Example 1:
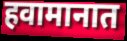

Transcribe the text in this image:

हवामानात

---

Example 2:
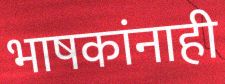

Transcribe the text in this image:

भाषकांनाही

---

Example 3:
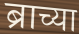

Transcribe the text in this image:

ब्राच्या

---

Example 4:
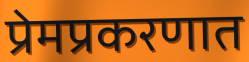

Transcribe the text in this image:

प्रेमप्रकरणात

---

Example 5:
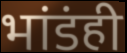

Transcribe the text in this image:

भांडंही